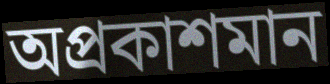
অপ্রকাশমান